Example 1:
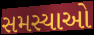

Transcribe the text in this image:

સમસ્યાઓ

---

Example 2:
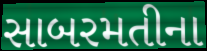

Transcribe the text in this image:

સાબરમતીના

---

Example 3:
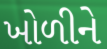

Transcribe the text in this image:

ખોળીને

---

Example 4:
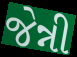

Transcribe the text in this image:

જેન્ની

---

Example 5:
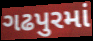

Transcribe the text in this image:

ગઢપુરમાં